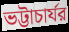
ভট্টাচার্যর